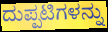
ದುಪ್ಪಟಿಗಳನ್ನು